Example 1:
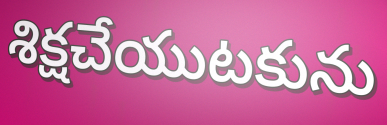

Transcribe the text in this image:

శిక్షచేయుటకును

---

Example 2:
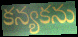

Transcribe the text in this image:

కన్యకను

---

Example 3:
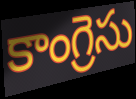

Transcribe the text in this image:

కాంగ్రెసు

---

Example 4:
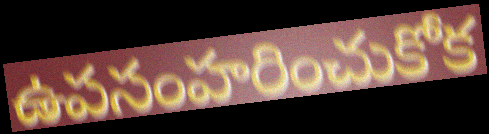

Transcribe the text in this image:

ఉపసంహరించుకోక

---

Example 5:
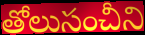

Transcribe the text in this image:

తోలుసంచీని